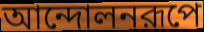
আন্দোলনরূপে